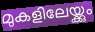
മുകളിലേയ്ക്കും